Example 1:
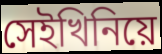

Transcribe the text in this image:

সেইখিনিয়ে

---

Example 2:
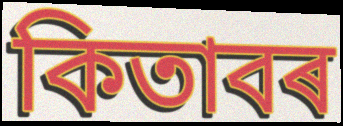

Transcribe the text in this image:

কিতাবৰ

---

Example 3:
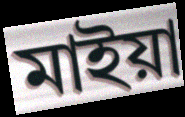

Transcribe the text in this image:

মাইয়া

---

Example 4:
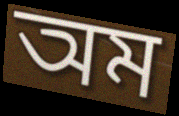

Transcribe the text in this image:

অম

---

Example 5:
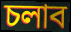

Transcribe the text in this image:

চলাব